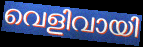
വെളിവായി